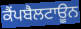
ਕੈਂਪਬੈਲਟਾਊਨ